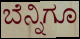
ಬೆನ್ನಿಗೂ